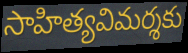
సాహిత్యవిమర్శకు